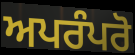
ਅਪਰੰਪਰੋ